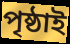
পৃষ্ঠাই